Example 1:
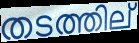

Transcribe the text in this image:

തടത്തില്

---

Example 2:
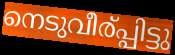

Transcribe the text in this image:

നെടുവീര്പ്പിട്ടു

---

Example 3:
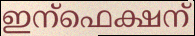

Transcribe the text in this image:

ഇന്ഫെക്ഷന്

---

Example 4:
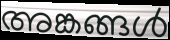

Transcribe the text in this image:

അങ്കങ്ങൾ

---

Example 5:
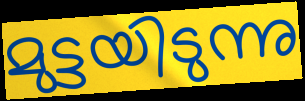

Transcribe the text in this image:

മുട്ടയിടുന്നു